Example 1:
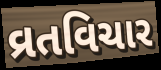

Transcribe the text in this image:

વ્રતવિચાર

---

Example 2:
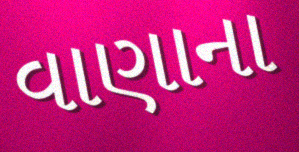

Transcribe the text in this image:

વાણાના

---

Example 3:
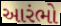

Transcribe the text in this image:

આરંભો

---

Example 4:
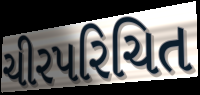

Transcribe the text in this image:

ચીરપરિચિત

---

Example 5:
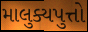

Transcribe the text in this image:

માલુક્યપુત્તો